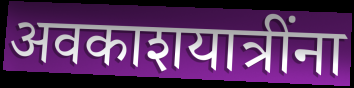
अवकाशयात्रींना